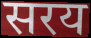
सरय